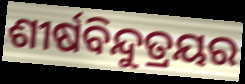
ଶୀର୍ଷବିନ୍ଦୁତ୍ରୟର